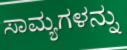
ಸಾಮ್ಯಗಳನ್ನು